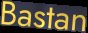
Bastan